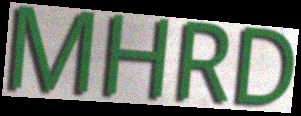
MHRD